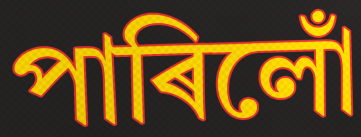
পাৰিলোঁ